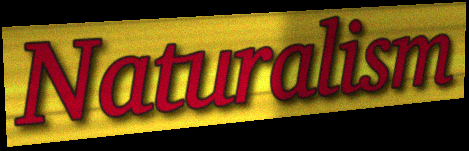
Naturalism